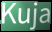
Kuja